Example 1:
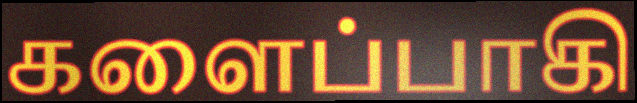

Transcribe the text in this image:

களைப்பாகி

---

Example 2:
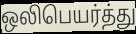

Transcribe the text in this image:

ஒலிபெயர்த்து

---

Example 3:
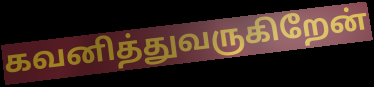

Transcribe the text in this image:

கவனித்துவருகிறேன்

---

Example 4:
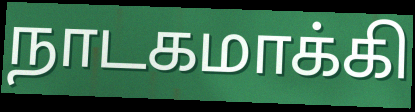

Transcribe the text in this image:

நாடகமாக்கி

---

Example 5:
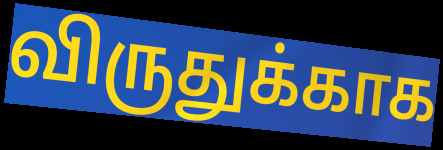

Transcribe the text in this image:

விருதுக்காக